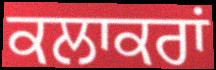
ਕਲਾਕਰਾਂ